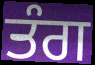
ਤੰਗ